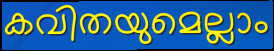
കവിതയുമെല്ലാം